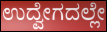
ಉದ್ವೇಗದಲ್ಲೇ